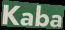
Kaba